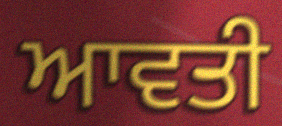
ਆਵਤੀ